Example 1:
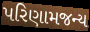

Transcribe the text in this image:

પરિણામજન્ય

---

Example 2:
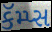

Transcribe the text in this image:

કૅમ્પ્સ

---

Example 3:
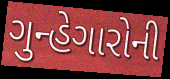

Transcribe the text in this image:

ગુન્હેગારોની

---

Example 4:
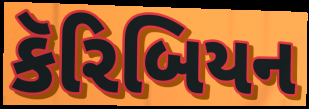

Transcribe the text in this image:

કૅરિબિયન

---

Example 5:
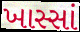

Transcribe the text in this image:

ખાસ્સાં